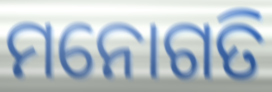
ମନୋଗତି